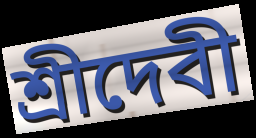
শ্রীদেবী